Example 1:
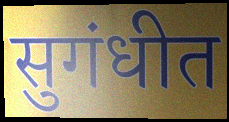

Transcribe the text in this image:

सुगंधीत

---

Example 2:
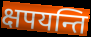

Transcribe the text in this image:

क्षपयन्ति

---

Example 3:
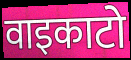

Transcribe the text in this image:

वाइकाटो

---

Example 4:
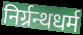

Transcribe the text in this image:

निर्ग्रन्थधर्म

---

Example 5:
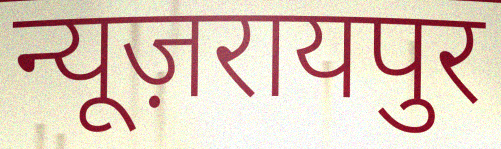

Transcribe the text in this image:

न्यूज़रायपुर